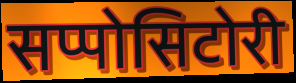
सप्पोसिटोरी